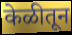
केळीतून